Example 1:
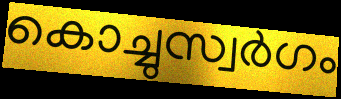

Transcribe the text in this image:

കൊച്ചുസ്വർഗം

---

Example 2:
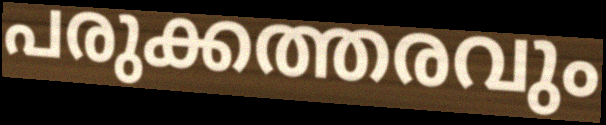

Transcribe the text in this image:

പരുക്കത്തരവും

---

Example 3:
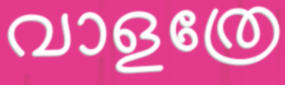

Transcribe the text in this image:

വാളത്രേ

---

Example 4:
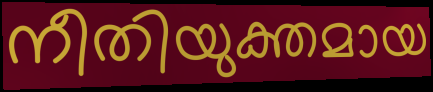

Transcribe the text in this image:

നീതിയുക്തമായ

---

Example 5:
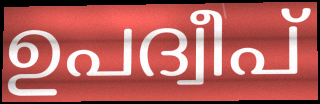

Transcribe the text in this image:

ഉപദ്വീപ്